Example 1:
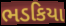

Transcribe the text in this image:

ભડકિયા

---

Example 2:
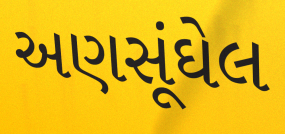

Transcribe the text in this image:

અણસૂંઘેલ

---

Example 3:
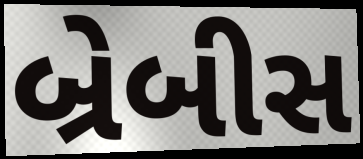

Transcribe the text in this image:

બ્રેબીસ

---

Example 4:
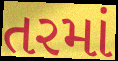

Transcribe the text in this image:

તરમાં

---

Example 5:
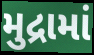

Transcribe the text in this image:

મુદ્રામાં